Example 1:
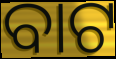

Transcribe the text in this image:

ବାଟ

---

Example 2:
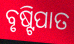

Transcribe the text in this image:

ବୃଷ୍ଟିପାତ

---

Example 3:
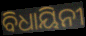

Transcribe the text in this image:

ବିଧାୟିନୀ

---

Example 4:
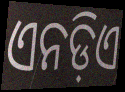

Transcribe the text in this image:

ଏନଡ଼ିଏ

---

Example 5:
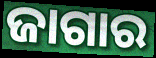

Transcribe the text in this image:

ଜାଗାର